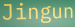
Jingun